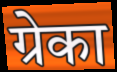
ग्रेका